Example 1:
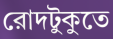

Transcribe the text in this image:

রোদটুকুতে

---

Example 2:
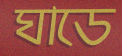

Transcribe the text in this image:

ঘাডে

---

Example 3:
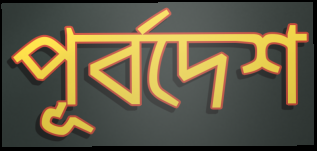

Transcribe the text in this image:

পূর্বদেশ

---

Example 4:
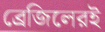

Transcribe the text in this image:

ব্রেজিলেরই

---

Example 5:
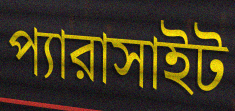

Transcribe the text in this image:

প্যারাসাইট